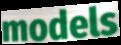
models